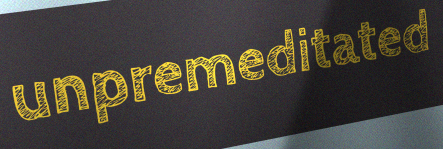
unpremeditated